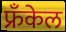
फ्रँकेल